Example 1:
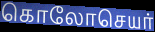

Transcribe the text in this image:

கொலோசெயர்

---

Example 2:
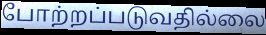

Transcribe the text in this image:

போற்றப்படுவதில்லை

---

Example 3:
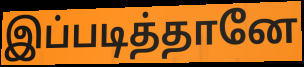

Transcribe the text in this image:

இப்படித்தானே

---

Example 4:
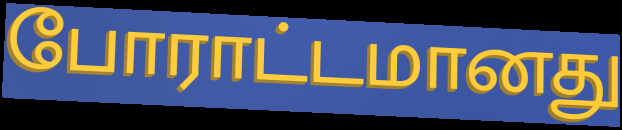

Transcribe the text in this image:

போராட்டமானது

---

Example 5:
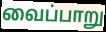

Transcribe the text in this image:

வைப்பாறு